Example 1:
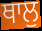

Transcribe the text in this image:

ਥਾਲੁ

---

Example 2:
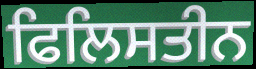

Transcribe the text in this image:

ਫਿਲਿਸਤੀਨ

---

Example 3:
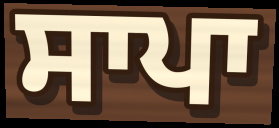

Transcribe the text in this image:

ਸਾਪਾ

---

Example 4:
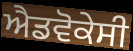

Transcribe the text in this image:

ਐਡਵੋਕੇਸੀ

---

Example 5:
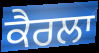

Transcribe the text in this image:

ਕੈਰਲਾ